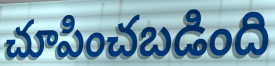
చూపించబడింది